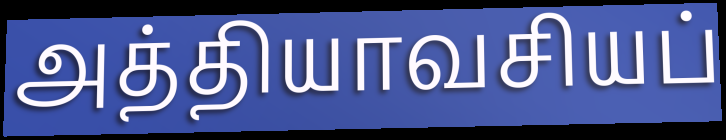
அத்தியாவசியப்